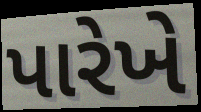
પારેખે